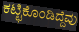
ಕಟ್ಟಿಕೊಂಡಿದ್ದೆವು